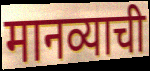
मानव्याची